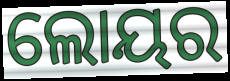
ଲୋୟର